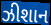
ઝીશાન